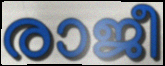
രാജീ